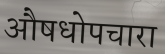
औषधोपचारा